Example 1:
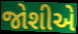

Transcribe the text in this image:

જોશીએ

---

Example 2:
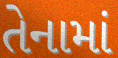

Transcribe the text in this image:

તેનામાં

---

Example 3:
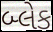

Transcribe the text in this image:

બ્લેક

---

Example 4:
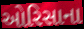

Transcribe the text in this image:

ઓરિસાના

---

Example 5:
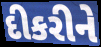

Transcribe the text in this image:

દીકરીને